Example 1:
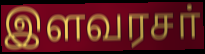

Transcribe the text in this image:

இளவரசர்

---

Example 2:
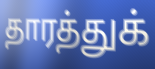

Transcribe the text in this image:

தாரத்துக்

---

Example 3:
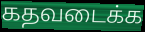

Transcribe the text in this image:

கதவடைக்க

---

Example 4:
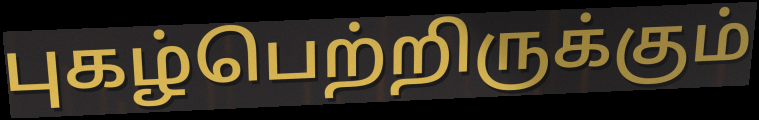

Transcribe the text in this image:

புகழ்பெற்றிருக்கும்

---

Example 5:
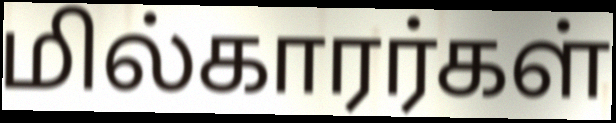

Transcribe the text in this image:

மில்காரர்கள்